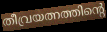
തീവ്രയത്നത്തിന്റെ